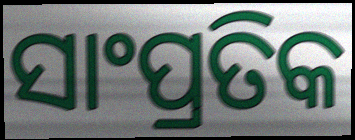
ସାଂପ୍ରତିକ